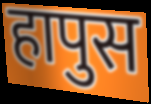
हापुस